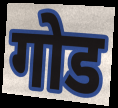
गोड